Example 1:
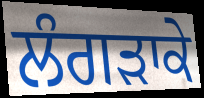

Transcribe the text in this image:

ਲੰਗੜਾਕੇ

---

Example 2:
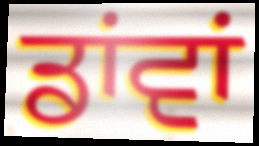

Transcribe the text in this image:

ਡਾਂਵਾਂ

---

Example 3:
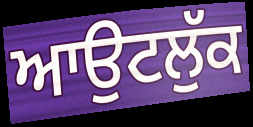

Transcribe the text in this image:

ਆਉਟਲੁੱਕ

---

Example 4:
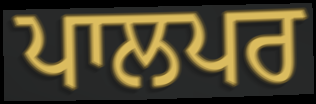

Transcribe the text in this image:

ਪਾਲਪਰ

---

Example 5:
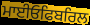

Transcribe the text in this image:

ਮਾਈਓਫਿਬਰਿਲ